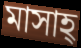
মাসাহ্